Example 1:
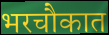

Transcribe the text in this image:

भरचौकात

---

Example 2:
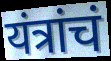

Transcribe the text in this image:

यंत्रांचं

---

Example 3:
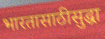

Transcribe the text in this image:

भारतासाठीसुद्धा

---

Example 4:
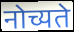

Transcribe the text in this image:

नोच्यते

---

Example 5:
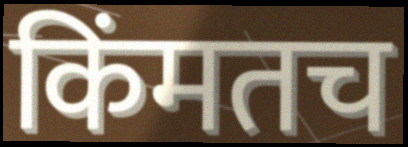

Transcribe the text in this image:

किंमतच